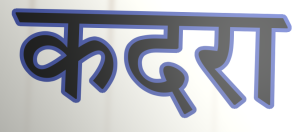
कदरा